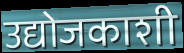
उद्योजकाशी